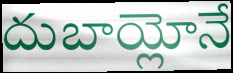
దుబాయ్లోనే